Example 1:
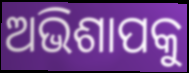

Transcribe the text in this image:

ଅଭିଶାପକୁ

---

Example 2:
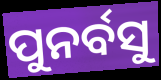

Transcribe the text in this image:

ପୁନର୍ବସୁ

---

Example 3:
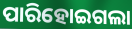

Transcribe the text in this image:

ପାରିହୋଇଗଲା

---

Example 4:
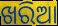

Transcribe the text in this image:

ଖରିଆ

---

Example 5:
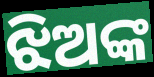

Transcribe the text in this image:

ଝିଅଙ୍କ